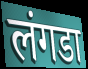
लंगडा